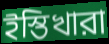
ইস্তিখারা